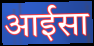
आईसा